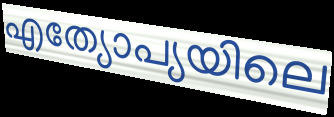
എത്യോപ്യയിലെ